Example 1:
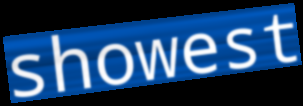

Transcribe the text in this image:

showest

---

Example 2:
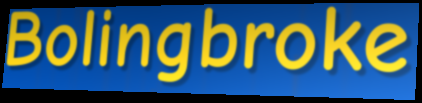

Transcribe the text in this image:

Bolingbroke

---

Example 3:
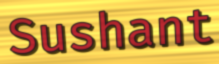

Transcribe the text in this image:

Sushant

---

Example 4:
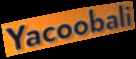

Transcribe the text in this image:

Yacoobali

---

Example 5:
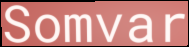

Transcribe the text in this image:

Somvar